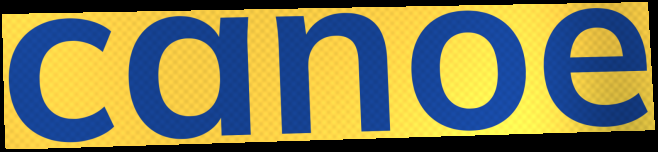
canoe